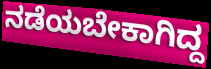
ನಡೆಯಬೇಕಾಗಿದ್ದ